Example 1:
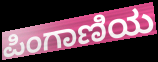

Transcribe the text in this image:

ಪಿಂಗಾಣಿಯ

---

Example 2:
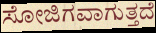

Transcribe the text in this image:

ಸೋಜಿಗವಾಗುತ್ತದೆ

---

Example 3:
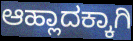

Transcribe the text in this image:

ಆಹ್ಲಾದಕ್ಕಾಗಿ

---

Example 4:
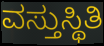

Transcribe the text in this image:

ವಸ್ತುಸ್ಥಿತಿ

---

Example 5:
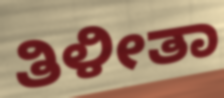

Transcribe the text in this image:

ತಿಳೀತಾ